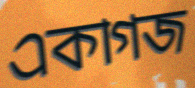
একাগজ